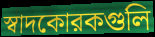
স্বাদকোরকগুলি